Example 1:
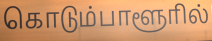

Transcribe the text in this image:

கொடும்பாளூரில்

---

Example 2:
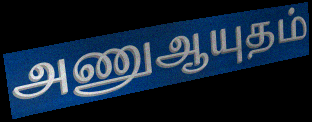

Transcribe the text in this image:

அணுஆயுதம்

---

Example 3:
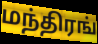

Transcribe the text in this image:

மந்திரங்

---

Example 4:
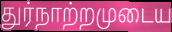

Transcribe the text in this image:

துர்நாற்றமுடைய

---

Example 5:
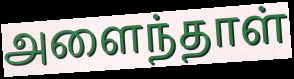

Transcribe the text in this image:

அளைந்தாள்